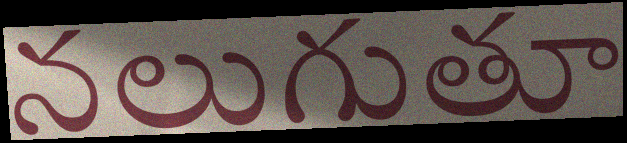
నలుగుతూ